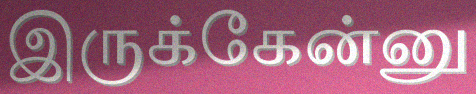
இருக்கேன்னு